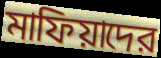
মাফিয়াদের